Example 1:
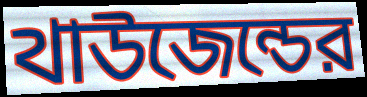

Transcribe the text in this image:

থাউজেন্ডের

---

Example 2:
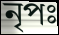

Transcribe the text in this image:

নৃপঃ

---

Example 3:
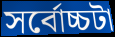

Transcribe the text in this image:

সর্বোচ্চটা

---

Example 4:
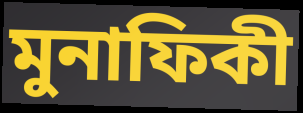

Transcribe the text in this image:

মুনাফিকী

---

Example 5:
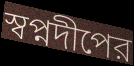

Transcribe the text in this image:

স্বপ্নদীপের